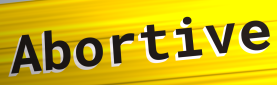
Abortive